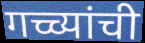
गच्च्यांची